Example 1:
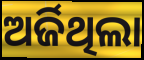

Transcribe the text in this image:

ଅର୍ଜିଥିଲା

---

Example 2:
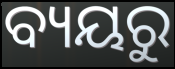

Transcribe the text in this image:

ବ୍ୟୟରୁ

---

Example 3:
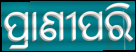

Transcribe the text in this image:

ପ୍ରାଣୀପରି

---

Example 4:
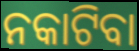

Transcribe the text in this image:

ନକାଟିବା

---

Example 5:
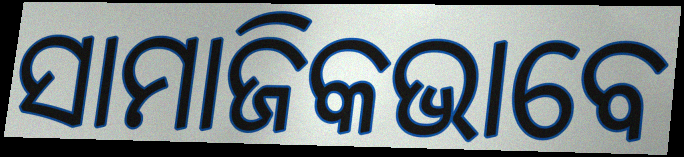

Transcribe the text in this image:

ସାମାଜିକଭାବେ